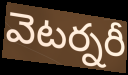
వెటర్నరీ